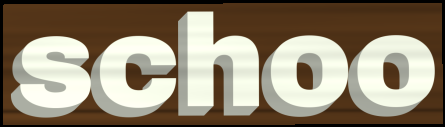
schoo